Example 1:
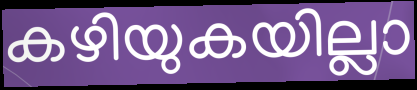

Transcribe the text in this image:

കഴിയുകയില്ലാ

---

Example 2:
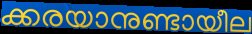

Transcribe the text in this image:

ക്കരയാനുണ്ടായീല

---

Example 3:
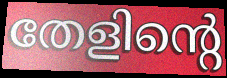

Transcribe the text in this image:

തേളിന്റെ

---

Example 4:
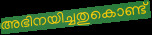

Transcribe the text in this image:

അഭിനയിച്ചതുകൊണ്ട്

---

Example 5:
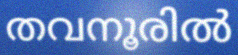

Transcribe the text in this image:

തവനൂരിൽ